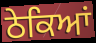
ਠੇਕਿਆਂ